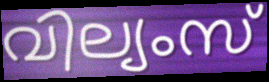
വില്യംസ്